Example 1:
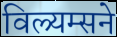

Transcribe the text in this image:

विल्यम्सने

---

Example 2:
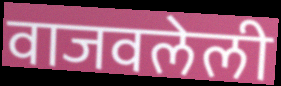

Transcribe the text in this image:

वाजवलेली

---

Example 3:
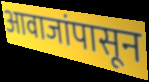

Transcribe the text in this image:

आवाजांपासून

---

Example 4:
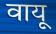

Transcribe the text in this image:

वायू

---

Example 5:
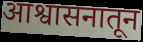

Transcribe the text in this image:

आश्वासनातून